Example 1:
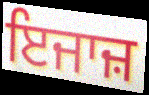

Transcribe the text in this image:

ਇਜਾਜ਼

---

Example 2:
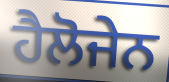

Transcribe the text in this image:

ਹੈਲੋਜੇਨ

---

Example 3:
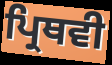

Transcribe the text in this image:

ਪ੍ਰਿਥਵੀ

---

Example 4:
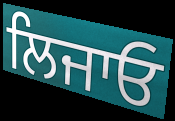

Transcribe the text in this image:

ਲਿਜਾਓ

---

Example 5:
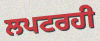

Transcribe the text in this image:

ਲਪਟਰਹੀ